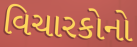
વિચારકોનો